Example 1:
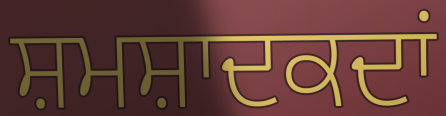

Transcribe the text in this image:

ਸ਼ਮਸ਼ਾਦਕਦਾਂ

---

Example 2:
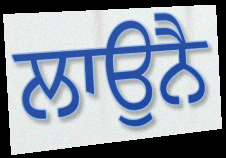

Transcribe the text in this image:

ਲਾਉਨੈ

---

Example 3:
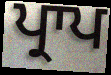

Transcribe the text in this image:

ਪ੍ਰਾਪ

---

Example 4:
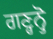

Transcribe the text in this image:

ਗਣ੍ਹਨ੍ਤੋ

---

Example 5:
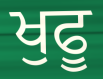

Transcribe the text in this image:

ਖੁਫੂ